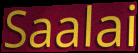
Saalai